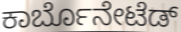
ಕಾರ್ಬೊನೇಟೆಡ್